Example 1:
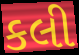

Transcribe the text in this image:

કલી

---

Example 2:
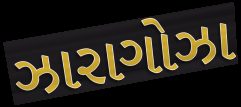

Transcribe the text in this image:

ઝારાગોઝા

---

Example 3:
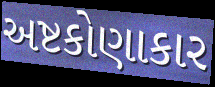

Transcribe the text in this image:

અષ્ટકોણાકાર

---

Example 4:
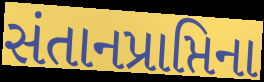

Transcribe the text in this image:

સંતાનપ્રાપ્તિના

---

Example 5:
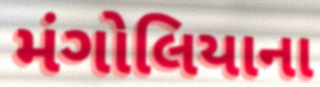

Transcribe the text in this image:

મંગોલિયાના